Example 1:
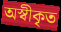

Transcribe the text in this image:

অস্বীকৃত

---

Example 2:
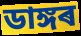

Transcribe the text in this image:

ডাঙ্গৰ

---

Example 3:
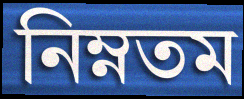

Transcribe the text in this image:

নিম্নতম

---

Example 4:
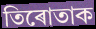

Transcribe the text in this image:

তিৰোতাক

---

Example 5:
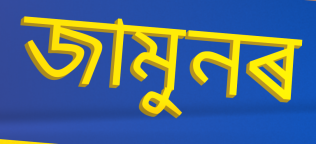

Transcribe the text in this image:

জামুনৰ